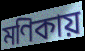
মণিকায়